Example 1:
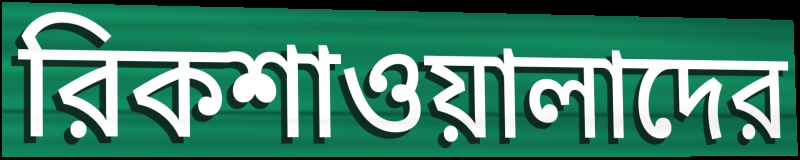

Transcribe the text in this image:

রিকশাওয়ালাদের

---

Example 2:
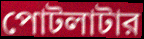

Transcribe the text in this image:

পোটলাটার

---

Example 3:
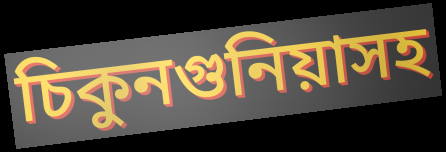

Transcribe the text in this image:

চিকুনগুনিয়াসহ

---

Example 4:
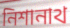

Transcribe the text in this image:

নিশানাথ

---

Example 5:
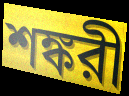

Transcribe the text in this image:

শঙ্করী